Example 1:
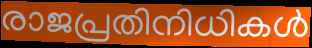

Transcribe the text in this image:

രാജപ്രതിനിധികൾ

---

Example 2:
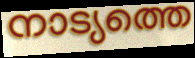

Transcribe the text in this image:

നാട്യത്തെ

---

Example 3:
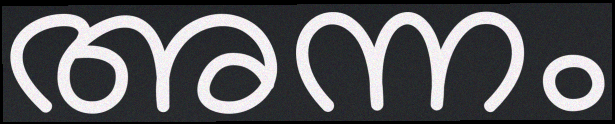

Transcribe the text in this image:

അന്നം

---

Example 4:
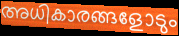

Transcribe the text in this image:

അധികാരങ്ങളോടും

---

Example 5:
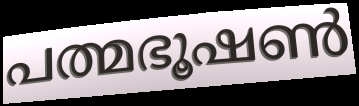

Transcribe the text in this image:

പത്മഭൂഷൺ